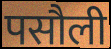
पसौली